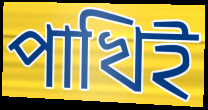
পাখিই